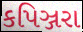
કપિઞ્જરા